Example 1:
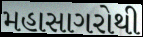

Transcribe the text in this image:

મહાસાગરોથી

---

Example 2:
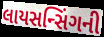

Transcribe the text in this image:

લાયસન્સિંગની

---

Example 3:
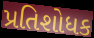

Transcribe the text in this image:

પ્રતિશોધક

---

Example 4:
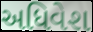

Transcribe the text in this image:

અધિવેશ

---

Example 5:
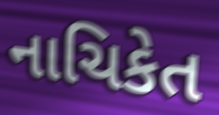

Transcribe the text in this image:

નાચિકેત